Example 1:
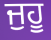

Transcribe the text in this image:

ਜੁਹੂ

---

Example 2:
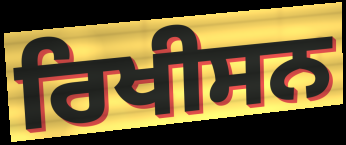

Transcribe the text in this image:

ਰਿਖੀਸਨ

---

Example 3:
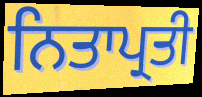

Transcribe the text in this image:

ਨਿਤਾਪ੍ਰਤੀ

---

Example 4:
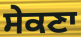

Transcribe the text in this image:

ਸੇਕਣਾ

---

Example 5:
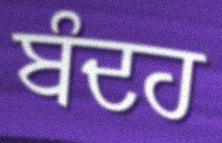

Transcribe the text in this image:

ਬੰਦਹ